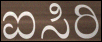
ಐಸಿರಿ